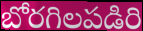
బోరగిలపడిరి